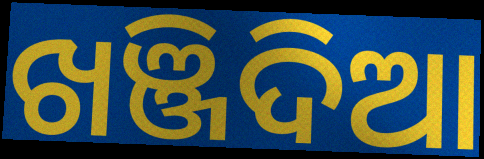
ଖଞ୍ଜିଦିଆ